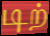
டிற்